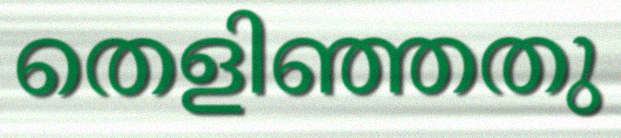
തെളിഞ്ഞതു